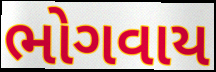
ભોગવાય